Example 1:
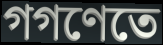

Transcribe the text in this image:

গগণেতে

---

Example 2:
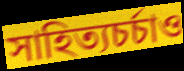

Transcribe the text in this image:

সাহিত্যচর্চাও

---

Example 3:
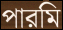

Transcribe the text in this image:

পারমি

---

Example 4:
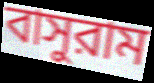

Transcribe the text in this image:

বাসুরাম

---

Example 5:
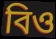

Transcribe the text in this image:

বিও